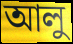
আলু